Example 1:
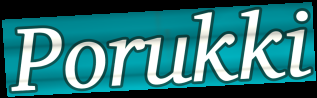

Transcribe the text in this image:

Porukki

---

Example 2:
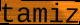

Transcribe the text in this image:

tamiz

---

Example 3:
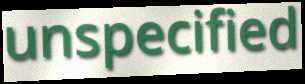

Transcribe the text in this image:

unspecified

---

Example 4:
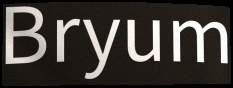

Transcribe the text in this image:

Bryum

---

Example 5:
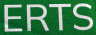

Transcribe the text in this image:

ERTS